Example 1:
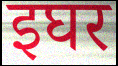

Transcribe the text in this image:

इघर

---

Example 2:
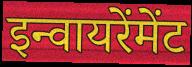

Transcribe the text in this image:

इन्वायरेंमेंट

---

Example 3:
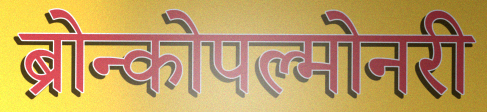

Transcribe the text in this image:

ब्रोन्कोपल्मोनरी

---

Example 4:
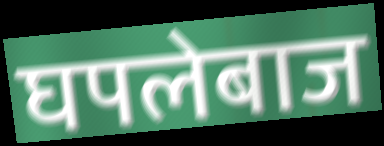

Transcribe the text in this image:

घपलेबाज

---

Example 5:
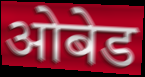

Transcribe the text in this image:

ओबेड